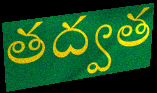
తద్వత